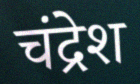
चंद्रेश